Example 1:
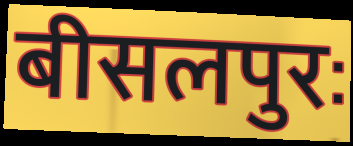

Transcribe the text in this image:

बीसलपुरः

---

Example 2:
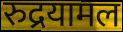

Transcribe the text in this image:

रुद्रयामल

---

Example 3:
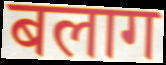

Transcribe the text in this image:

बलाग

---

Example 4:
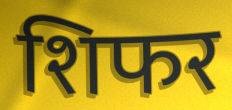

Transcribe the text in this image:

शिफर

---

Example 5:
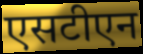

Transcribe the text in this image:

एसटीएन